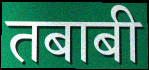
तबाबी